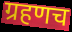
ग्रहणच